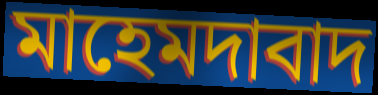
মাহেমদাবাদ